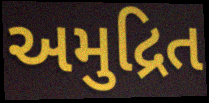
અમુદ્રિત